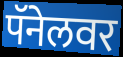
पॅनेलवर